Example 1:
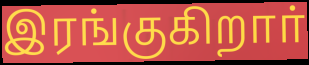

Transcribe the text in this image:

இரங்குகிறார்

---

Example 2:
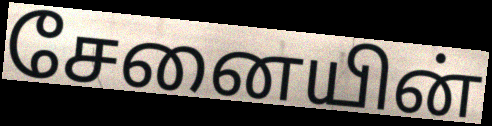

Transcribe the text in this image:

சேனையின்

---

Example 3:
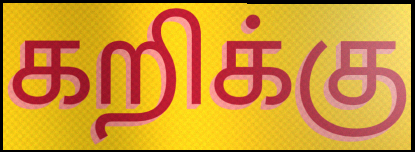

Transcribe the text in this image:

கறிக்கு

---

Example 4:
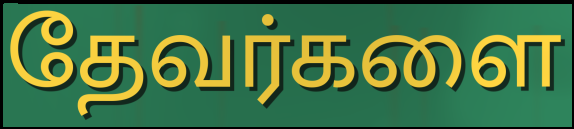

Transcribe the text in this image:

தேவர்களை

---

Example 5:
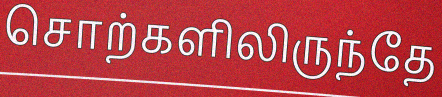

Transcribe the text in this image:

சொற்களிலிருந்தே